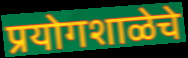
प्रयोगशाळेचे